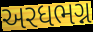
અરધભગ્ન